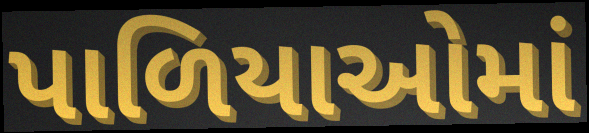
પાળિયાઓમાં